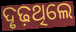
ଦୃଢ଼ଥିଲେ